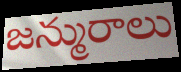
జన్మురాలు